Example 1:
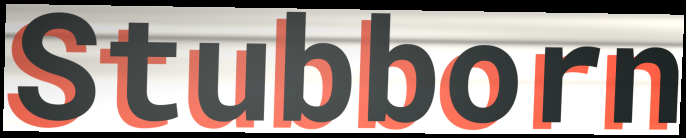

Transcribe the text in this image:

Stubborn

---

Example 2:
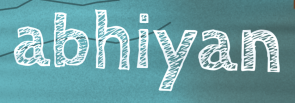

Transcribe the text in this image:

abhiyan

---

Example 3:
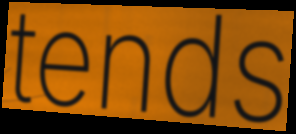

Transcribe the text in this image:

tends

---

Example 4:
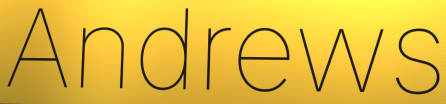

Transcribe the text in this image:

Andrews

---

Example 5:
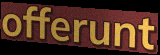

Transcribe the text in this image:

offerunt